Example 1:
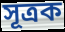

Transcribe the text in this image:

সূত্ৰক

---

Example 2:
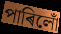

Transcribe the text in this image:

পাৰিলোঁ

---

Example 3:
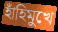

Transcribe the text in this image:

হাঁহিমুখে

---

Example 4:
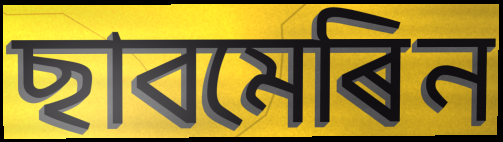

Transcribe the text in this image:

ছাবমেৰিন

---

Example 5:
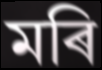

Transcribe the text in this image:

মৰি